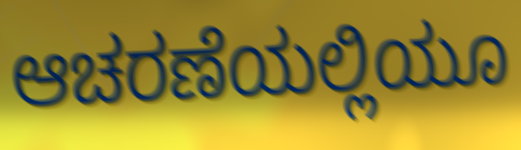
ಆಚರಣೆಯಲ್ಲಿಯೂ